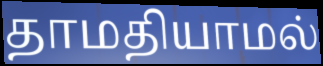
தாமதியாமல்